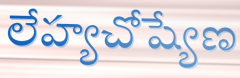
లేహ్యచోష్యేణ